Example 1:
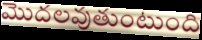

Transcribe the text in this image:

మొదలవుతుంటుంది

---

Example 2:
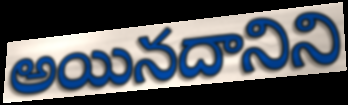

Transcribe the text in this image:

అయినదానిని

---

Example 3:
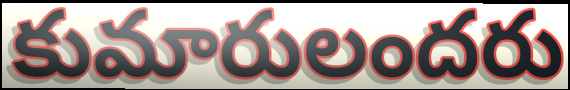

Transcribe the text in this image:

కుమారులందరు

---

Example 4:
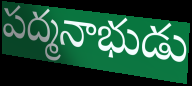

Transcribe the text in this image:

పద్మనాభుడు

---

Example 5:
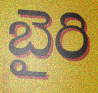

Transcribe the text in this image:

బైరి